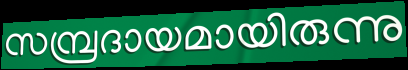
സമ്പ്രദായമായിരുന്നു